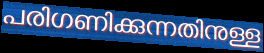
പരിഗണിക്കുന്നതിനുള്ള